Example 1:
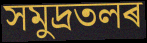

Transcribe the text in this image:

সমুদ্ৰতলৰ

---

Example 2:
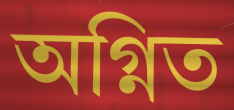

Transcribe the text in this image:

অগ্নিত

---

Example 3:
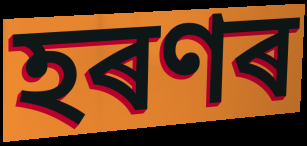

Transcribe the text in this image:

হৰণৰ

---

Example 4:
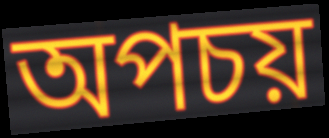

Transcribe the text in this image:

অপচয়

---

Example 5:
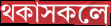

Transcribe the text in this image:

থকাসকলে